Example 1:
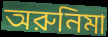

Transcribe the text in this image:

অরুনিমা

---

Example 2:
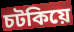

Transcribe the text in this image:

চটকিয়ে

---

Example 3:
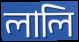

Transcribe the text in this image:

লালি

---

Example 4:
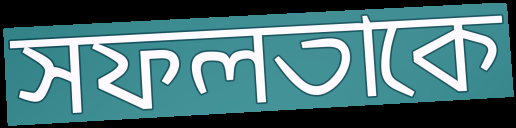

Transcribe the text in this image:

সফলতাকে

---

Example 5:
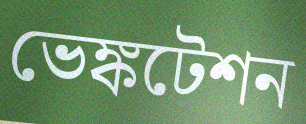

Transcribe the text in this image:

ভেঙ্কটেশন